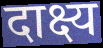
दाक्ष्य